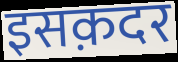
इसक़दर